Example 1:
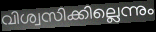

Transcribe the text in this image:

വിശ്വസിക്കില്ലെന്നും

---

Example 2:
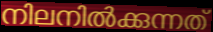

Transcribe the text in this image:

നിലനിൽക്കുന്നത്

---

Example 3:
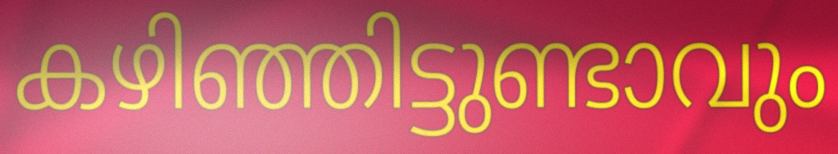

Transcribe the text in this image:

കഴിഞ്ഞിട്ടുണ്ടാവും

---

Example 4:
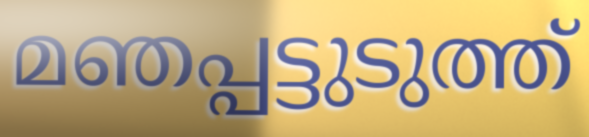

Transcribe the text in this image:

മഞപ്പട്ടുടുത്ത്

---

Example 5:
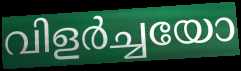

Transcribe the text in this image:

വിളർച്ചയോ